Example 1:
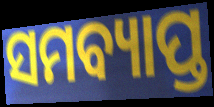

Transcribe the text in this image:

ସମବ୍ୟାପ୍ତ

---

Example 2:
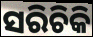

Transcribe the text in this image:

ସରିଚିକି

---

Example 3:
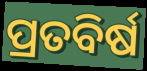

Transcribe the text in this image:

ପ୍ରତବିର୍ଷ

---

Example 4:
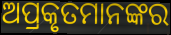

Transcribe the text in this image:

ଅପ୍ରକୃତମାନଙ୍କର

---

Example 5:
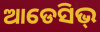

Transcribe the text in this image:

ଆଡେସିଭ୍